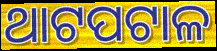
ଥାଟପଟାଳ